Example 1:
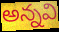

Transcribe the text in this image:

అన్నవి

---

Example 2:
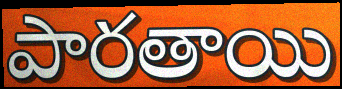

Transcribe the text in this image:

పారతాయి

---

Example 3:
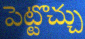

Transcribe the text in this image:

పెట్టొచ్చు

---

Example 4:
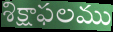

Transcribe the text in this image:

శిక్షాఫలము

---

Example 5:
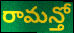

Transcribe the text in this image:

రామన్తో